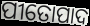
ପୀତୋପାଦ